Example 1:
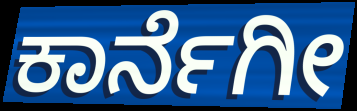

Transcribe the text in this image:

ಕಾರ್ನೆಗೀ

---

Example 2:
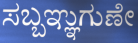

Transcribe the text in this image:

ಸಬ್ಬಞ್ಞುಗುಣೇ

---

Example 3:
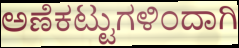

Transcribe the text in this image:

ಅಣೆಕಟ್ಟುಗಳಿಂದಾಗಿ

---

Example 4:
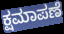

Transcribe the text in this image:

ಕ್ಷಮಾಪಣೆ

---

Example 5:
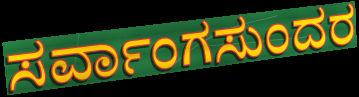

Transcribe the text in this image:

ಸರ್ವಾಂಗಸುಂದರ